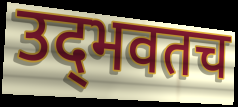
उद्‌भवतच